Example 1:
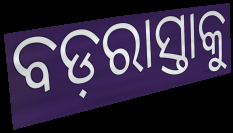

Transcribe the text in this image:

ବଡ଼ରାସ୍ତାକୁ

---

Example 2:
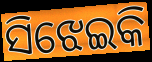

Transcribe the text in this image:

ସିଝେଇକି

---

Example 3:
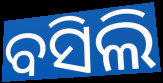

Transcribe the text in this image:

ବସିଲି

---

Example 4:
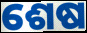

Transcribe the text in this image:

ଶେଷ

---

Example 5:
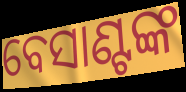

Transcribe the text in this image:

ବେସାଣ୍ଟଙ୍କ